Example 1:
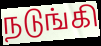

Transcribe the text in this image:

நடுங்கி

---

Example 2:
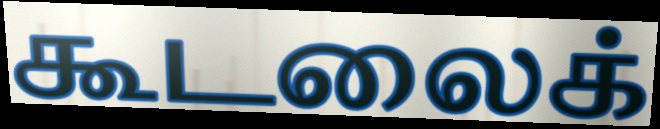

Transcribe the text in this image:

கூடலைக்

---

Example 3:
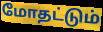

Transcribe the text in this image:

மோதட்டும்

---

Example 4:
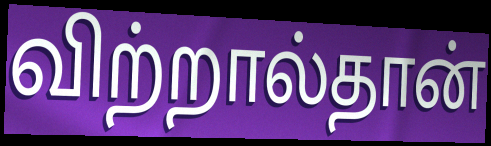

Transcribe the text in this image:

விற்றால்தான்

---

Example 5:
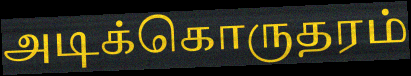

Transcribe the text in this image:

அடிக்கொருதரம்